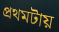
প্রথমটায়